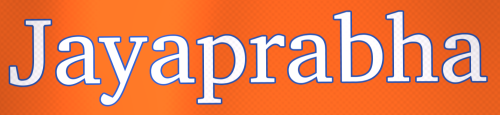
Jayaprabha